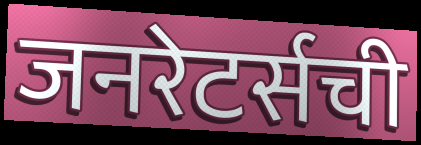
जनरेटर्सची